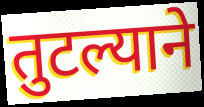
तुटल्याने